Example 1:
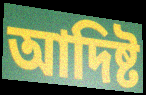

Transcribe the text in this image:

আদিষ্ট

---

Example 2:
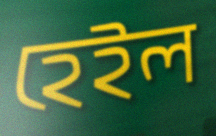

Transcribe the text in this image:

হেইল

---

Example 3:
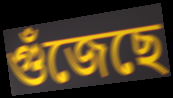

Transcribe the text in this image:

গুঁজেছে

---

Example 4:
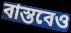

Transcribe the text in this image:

বাস্তবেও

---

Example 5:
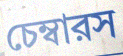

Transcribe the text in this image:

চেম্বারস